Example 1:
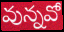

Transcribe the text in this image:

వున్నవో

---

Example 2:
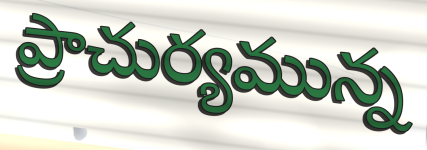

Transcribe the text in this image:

ప్రాచుర్యమున్న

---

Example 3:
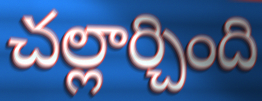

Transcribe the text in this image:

చల్లార్చింది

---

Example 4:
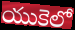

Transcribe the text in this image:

యుకెలో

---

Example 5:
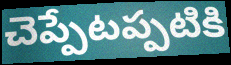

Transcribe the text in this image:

చెప్పేటప్పటికి